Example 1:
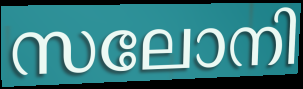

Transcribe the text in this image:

സലോനി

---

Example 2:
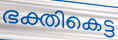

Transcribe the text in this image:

ഭക്തികെട്ട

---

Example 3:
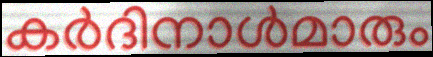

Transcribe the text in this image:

കർദിനാൾമാരും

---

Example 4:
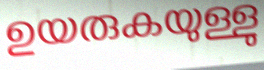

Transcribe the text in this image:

ഉയരുകയുള്ളു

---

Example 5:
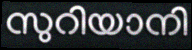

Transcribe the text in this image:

സുറിയാനി